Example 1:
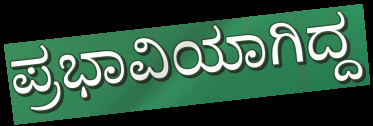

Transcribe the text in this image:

ಪ್ರಭಾವಿಯಾಗಿದ್ದ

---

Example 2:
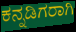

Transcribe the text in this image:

ಕನ್ನಡಿಗರಾಗಿ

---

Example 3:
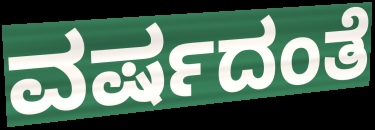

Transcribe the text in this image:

ವರ್ಷದಂತೆ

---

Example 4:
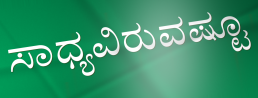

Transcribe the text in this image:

ಸಾಧ್ಯವಿರುವಷ್ಟೂ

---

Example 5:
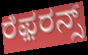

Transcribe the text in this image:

ರೆಫ಼ರನ್ಸ್